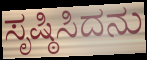
ಸೃಷ್ಠಿಸಿದನು